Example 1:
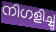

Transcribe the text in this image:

നിഗളിച്ചു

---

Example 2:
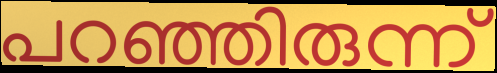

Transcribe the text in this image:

പറഞ്ഞിരുന്ന്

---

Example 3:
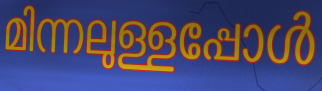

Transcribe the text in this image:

മിന്നലുള്ളപ്പോൾ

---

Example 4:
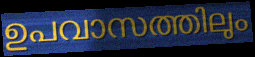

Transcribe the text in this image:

ഉപവാസത്തിലും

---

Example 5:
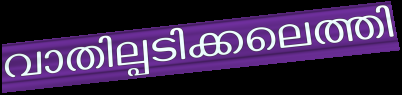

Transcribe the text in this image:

വാതില്പടിക്കലെത്തി